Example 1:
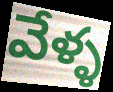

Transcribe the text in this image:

వేళ్ళ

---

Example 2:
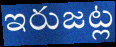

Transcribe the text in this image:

ఇరుజట్ల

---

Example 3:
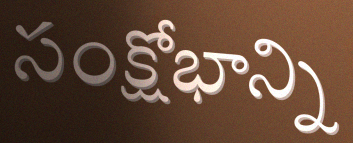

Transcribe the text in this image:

సంక్షోభాన్ని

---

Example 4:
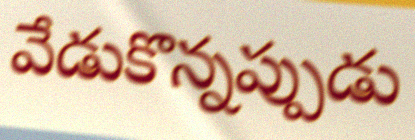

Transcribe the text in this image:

వేడుకొన్నప్పుడు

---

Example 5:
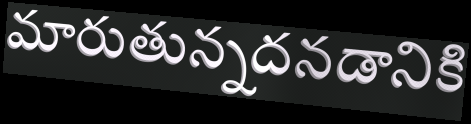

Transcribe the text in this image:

మారుతున్నదనడానికి